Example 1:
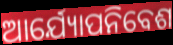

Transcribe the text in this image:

ଆର୍ଯ୍ୟୋପନିବେଶ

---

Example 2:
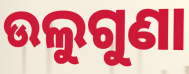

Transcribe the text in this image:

ଉଲୁଗୁଣା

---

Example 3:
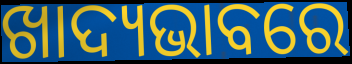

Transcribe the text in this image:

ଖାଦ୍ୟଭାବରେ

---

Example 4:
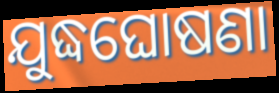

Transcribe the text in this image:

ଯୁଦ୍ଧଘୋଷଣା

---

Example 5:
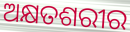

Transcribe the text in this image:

ଅକ୍ଷତଶରୀର